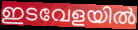
ഇടവേളയിൽ